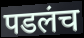
पडलंच